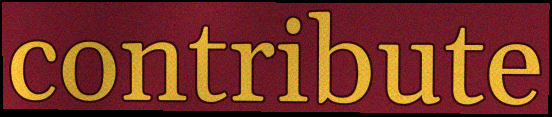
contribute